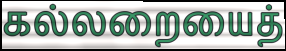
கல்லறையைத்